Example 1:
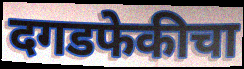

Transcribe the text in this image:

दगडफेकीचा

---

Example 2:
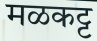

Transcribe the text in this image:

मळकट्ट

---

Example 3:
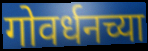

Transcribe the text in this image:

गोवर्धनच्या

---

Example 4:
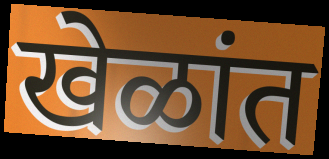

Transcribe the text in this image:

खेळांत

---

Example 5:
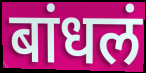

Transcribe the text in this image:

बांधलं